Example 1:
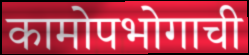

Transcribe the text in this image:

कामोपभोगाची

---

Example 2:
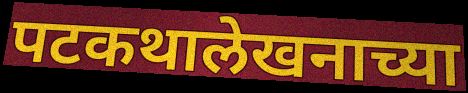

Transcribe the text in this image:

पटकथालेखनाच्या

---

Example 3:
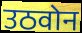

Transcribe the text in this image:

उठवोन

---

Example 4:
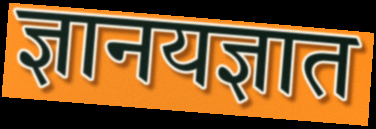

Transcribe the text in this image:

ज्ञानयज्ञात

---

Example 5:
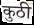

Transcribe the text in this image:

कुठी